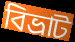
বিভ্রাট